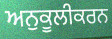
ਅਨੁਕੂਲੀਕਰਨ